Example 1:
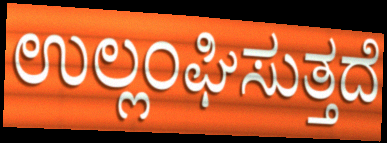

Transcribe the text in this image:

ಉಲ್ಲಂಘಿಸುತ್ತದೆ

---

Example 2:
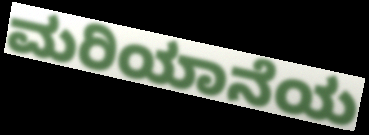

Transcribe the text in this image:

ಮರಿಯಾನೆಯ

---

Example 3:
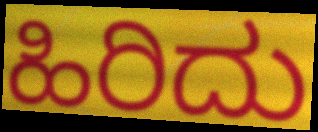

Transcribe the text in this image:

ಹಿರಿದು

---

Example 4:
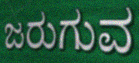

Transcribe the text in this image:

ಜರುಗುವ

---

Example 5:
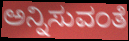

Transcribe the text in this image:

ಅನ್ನಿಸುವಂತೆ